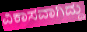
ವಿಕಾಸವಾಗಿದ್ದು